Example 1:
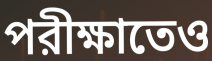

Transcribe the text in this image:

পরীক্ষাতেও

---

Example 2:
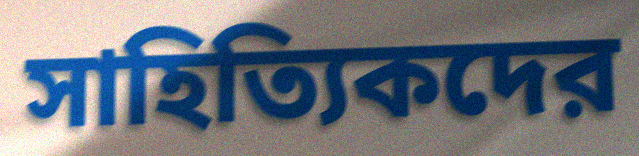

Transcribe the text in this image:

সাহিত্যিকদের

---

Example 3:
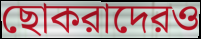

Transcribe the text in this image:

ছোকরাদেরও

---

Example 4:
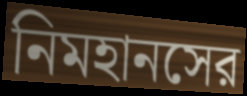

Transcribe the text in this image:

নিমহানসের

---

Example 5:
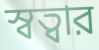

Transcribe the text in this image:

স্বত্বার